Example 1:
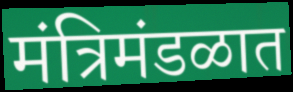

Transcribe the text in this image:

मंत्रिमंडळात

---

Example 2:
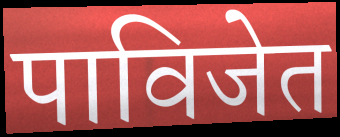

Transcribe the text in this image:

पाविजेत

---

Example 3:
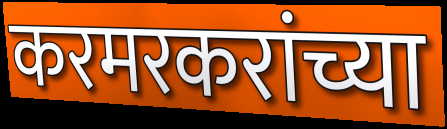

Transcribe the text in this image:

करमरकरांच्या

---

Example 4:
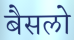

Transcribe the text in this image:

बैसलो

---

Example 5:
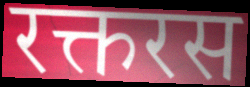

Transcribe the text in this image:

रक्तरस